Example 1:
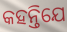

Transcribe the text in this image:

କହନ୍ତିଯେ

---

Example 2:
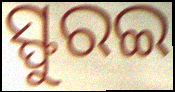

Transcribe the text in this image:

ସ୍ଫୁରଇ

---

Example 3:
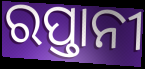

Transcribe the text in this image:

ରପ୍ତାନୀ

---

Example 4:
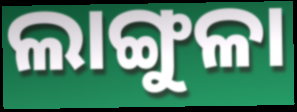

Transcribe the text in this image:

ଲାଙ୍ଗୁଳା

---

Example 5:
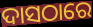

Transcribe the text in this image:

ଦାସଠାରେ